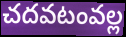
చదవటంవల్ల